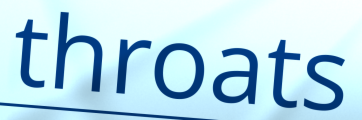
throats